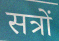
सत्रों